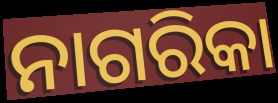
ନାଗରିକା